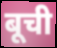
बूची